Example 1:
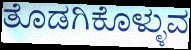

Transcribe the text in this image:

ತೊಡಗಿಕೊಳ್ಳುವ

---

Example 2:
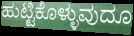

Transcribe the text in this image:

ಹುಟ್ಟಿಕೊಳ್ಳುವುದೂ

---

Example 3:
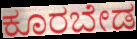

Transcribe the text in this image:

ಕೂರಬೇಡ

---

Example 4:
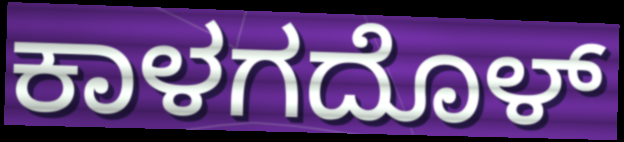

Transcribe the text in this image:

ಕಾಳಗದೊಳ್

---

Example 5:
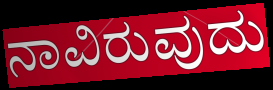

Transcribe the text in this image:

ನಾವಿರುವುದು